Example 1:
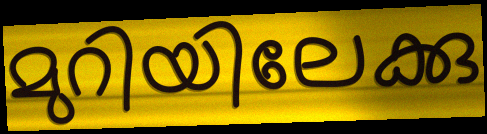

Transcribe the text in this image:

മുറിയിലേക്കു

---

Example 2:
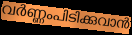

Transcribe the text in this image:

വർണ്ണംപിടിക്കുവാൻ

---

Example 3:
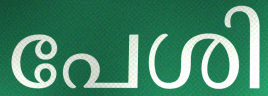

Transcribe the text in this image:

പേശി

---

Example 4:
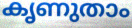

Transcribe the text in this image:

കൃണുതാം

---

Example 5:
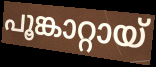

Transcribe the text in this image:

പൂങ്കാറ്റായ്